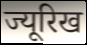
ज्यूरिख